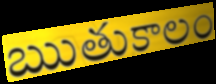
ఋతుకాలం